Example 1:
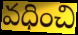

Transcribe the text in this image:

వధించి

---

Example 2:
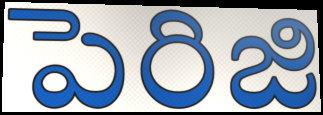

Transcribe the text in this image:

పెరిజి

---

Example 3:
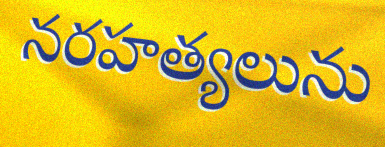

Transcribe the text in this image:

నరహత్యలును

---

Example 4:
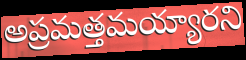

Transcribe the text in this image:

అప్రమత్తమయ్యారని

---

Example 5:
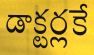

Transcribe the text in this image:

డాక్టర్లకే